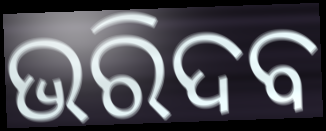
ଭରିଦବ